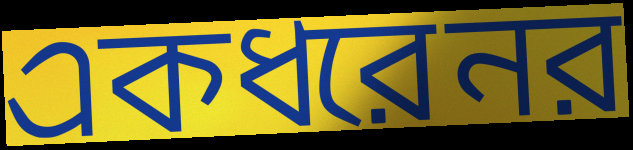
একধরেনর